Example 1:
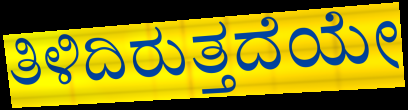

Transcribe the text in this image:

ತಿಳಿದಿರುತ್ತದೆಯೇ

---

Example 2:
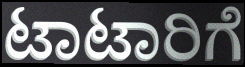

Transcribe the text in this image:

ಟಾಟಾರಿಗೆ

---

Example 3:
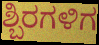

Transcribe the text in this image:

ಶ್ಬಿರಗಳಿಗ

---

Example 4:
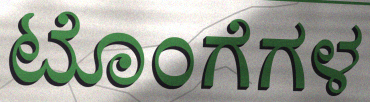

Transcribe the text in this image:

ಟೊಂಗೆಗಳ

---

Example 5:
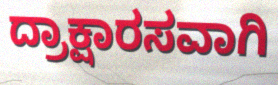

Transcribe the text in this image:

ದ್ರಾಕ್ಷಾರಸವಾಗಿ